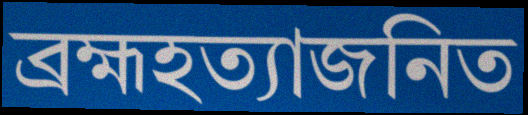
ব্রহ্মহত্যাজনিত